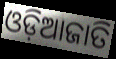
ଓଡ଼ିଆଜାତି